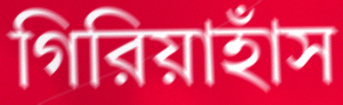
গিরিয়াহাঁস